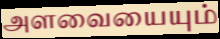
அளவையையும்